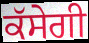
ਕੱਸੇਗੀ